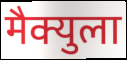
मैक्युला